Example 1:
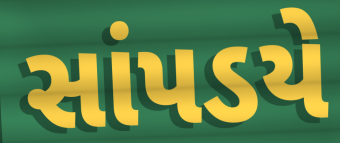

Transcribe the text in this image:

સાંપડયે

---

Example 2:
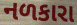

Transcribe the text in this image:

નળકારા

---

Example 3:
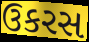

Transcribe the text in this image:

ઉકરસ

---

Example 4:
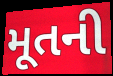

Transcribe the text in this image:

મૂતની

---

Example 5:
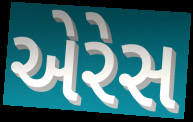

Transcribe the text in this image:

એરેસ